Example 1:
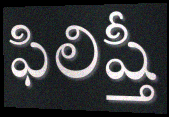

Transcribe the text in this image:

ఫిలిష్తీ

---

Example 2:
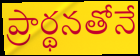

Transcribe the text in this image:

ప్రార్థనతోనే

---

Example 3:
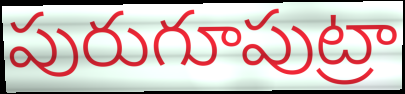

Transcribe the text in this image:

పురుగూపుట్రా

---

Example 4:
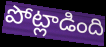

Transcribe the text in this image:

పోట్లాడింది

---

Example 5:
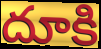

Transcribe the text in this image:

దూకి